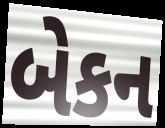
બેકન